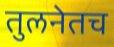
तुलनेतच